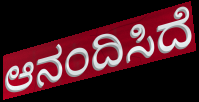
ಆನಂದಿಸಿದೆ